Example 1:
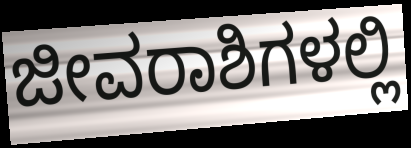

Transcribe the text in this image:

ಜೀವರಾಶಿಗಳಲ್ಲಿ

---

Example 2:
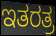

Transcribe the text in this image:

ಇತರತ್ರ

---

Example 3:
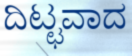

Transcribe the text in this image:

ದಿಟ್ಟವಾದ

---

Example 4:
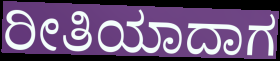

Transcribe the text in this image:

ರೀತಿಯಾದಾಗ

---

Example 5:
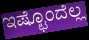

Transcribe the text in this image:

ಇಷ್ಟೊಂದೆಲ್ಲ